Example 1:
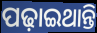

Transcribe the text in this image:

ପଢ଼ାଇଥାନ୍ତି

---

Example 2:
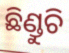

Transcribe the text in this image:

ଛିଣ୍ଡୁଚି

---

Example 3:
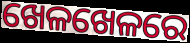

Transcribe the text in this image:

ଖେଳଖେଳରେ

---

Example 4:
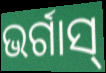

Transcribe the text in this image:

ଭର୍ଗାସ୍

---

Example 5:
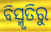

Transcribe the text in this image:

ବିସ୍ମୃତିରୁ